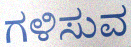
ಗಳಿಸುವ